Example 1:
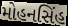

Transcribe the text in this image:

મોહનસિંહ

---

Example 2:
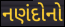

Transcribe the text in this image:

નણંદોનો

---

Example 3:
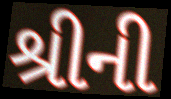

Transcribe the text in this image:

શ્રીની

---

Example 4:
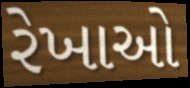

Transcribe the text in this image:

રેખાઓ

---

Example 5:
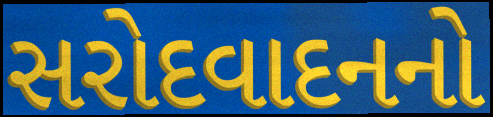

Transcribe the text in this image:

સરોદવાદનનો